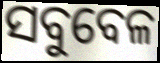
ସବୁବେଳ